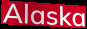
Alaska